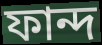
ফান্দ